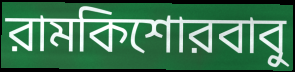
রামকিশোরবাবু